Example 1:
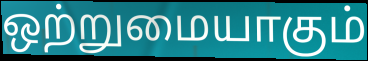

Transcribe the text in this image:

ஒற்றுமையாகும்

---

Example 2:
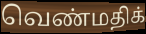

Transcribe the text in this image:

வெண்மதிக்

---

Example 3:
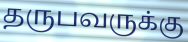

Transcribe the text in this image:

தருபவருக்கு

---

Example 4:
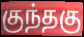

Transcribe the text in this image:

குந்தகு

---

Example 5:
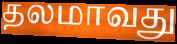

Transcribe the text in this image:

தலமாவது